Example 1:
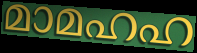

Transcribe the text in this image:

മാമഹഹ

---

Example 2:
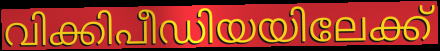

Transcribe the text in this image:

വിക്കിപീഡിയയിലേക്ക്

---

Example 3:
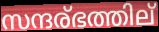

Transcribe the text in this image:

സന്ദര്ഭത്തില്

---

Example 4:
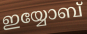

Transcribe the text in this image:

ഇയ്യോബ്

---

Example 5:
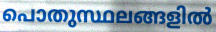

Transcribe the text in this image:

പൊതുസ്ഥലങ്ങളിൽ